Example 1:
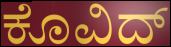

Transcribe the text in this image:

ಕೊವಿದ್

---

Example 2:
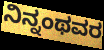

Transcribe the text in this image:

ನಿನ್ನಂಥವರ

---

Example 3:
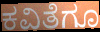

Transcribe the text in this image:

ಕವಿತೆಗೂ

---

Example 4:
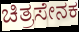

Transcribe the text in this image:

ಚಿತ್ರಸೇನಕ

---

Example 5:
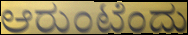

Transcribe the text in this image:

ಆರುಂಟೆಂದು